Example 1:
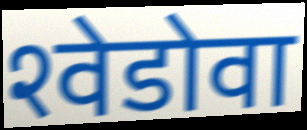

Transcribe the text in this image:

श्वेडोवा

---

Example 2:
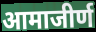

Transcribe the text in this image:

आमाजीर्ण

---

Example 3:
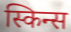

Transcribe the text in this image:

स्किन्स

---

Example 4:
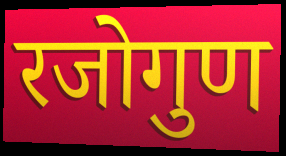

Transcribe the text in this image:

रजोगुण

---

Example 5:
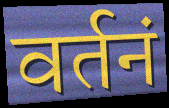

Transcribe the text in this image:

वर्तनं